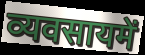
व्यवसायमें